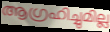
ആഗ്രഹിച്ചുമില്ല